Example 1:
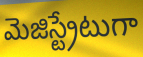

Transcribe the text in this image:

మెజిస్ట్రేటుగా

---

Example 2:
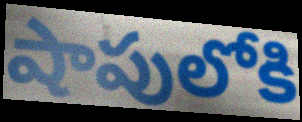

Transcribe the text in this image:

షాపులోకి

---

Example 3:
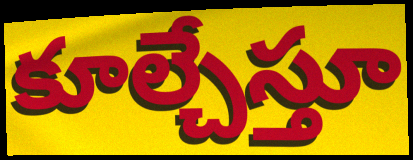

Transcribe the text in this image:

కూల్చేస్తూ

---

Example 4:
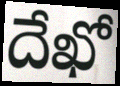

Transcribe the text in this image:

దేఖో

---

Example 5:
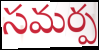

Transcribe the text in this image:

సమర్ప